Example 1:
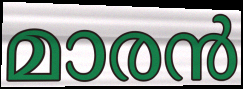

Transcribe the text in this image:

മാരൻ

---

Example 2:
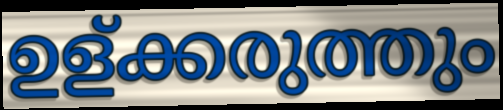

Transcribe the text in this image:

ഉള്ക്കരുത്തും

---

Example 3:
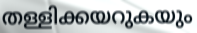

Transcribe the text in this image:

തള്ളിക്കയറുകയും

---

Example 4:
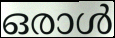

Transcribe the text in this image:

ഒരാൾ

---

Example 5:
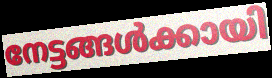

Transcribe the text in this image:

നേട്ടങ്ങൾക്കായി